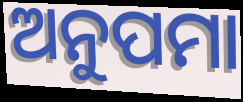
ଅନୁପମା